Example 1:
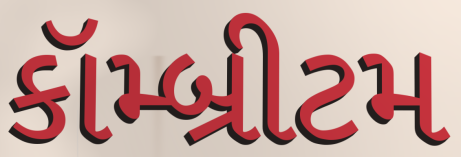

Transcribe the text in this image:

કૉમ્બ્રીટમ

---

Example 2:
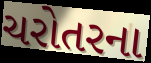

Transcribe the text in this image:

ચરોતરના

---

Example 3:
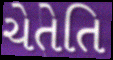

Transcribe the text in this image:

ચેતેતિ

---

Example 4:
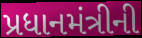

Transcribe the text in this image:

પ્રધાનમંત્રીની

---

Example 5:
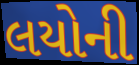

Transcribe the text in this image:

લયોની